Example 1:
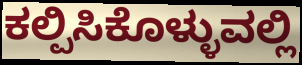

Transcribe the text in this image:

ಕಲ್ಪಿಸಿಕೊಳ್ಳುವಲ್ಲಿ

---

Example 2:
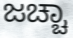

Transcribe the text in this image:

ಜಚ್ಚಾ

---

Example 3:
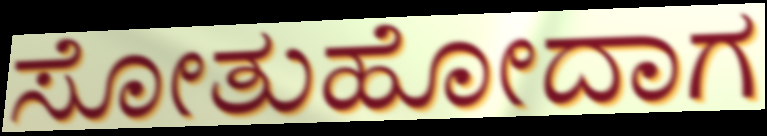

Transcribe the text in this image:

ಸೋತುಹೋದಾಗ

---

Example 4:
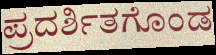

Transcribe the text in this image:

ಪ್ರದರ್ಶಿತಗೊಂಡ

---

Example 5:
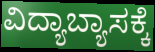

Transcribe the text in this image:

ವಿದ್ಯಾಬ್ಯಾಸಕ್ಕೆ